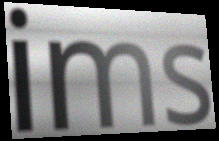
ims